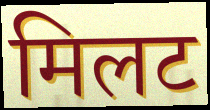
मिलट